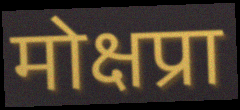
मोक्षप्रा